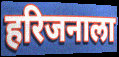
हरिजनाला